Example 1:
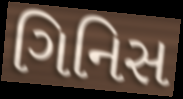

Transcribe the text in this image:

ગિનિસ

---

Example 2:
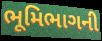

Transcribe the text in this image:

ભૂમિભાગની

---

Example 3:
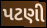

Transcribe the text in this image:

પટણી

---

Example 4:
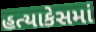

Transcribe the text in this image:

હત્યાકેસમાં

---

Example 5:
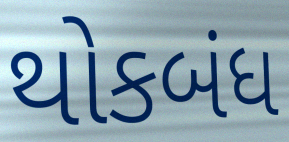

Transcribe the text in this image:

થોકબંધ